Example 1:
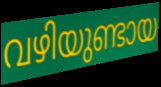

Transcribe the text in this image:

വഴിയുണ്ടായ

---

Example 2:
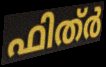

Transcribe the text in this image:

ഫിത്ർ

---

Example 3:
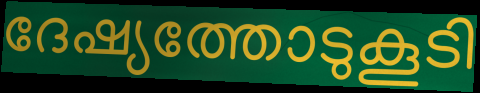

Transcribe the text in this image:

ദേഷ്യത്തോടുകൂടി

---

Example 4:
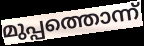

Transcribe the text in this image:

മുപ്പത്തൊന്ന്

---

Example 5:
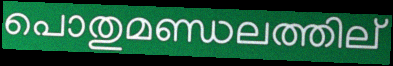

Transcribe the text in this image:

പൊതുമണ്ഡലത്തില്